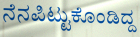
ನೆನಪಿಟ್ಟುಕೊಂಡಿದ್ದ